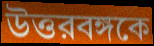
উত্তরবঙ্গকে